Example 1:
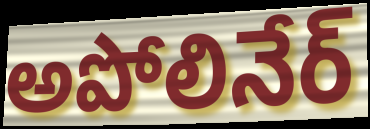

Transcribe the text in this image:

అపోలినేర్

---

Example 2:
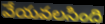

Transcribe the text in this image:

వేయవలసింది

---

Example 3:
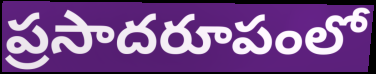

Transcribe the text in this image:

ప్రసాదరూపంలో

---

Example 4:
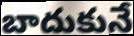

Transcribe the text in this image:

బాదుకునే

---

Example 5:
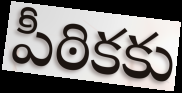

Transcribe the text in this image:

పీఠికకు